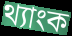
থ্যাংক